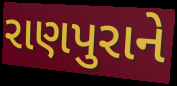
રાણપુરાને